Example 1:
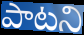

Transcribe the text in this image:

పాటని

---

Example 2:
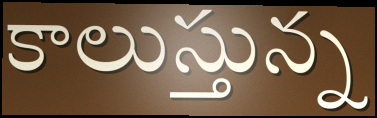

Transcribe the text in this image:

కాలుస్తున్న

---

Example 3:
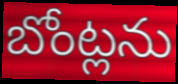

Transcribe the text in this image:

బోంట్లను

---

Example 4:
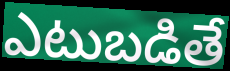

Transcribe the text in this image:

ఎటుబడితే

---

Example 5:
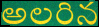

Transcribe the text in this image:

అలరిన